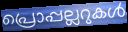
പ്രൊപ്പല്ലറുകൾ